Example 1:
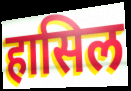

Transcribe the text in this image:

हासिल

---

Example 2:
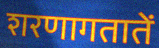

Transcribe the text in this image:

शरणागतातें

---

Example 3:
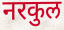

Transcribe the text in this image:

नरकुल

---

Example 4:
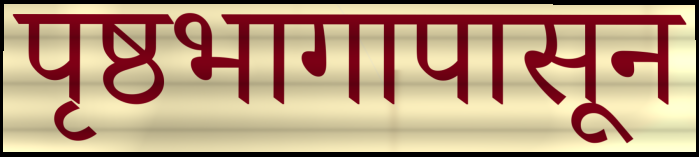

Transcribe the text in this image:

पृष्ठभागापासून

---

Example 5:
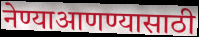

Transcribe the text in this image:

नेण्याआणण्यासाठी